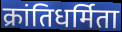
क्रांतिधर्मिता